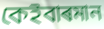
কেইবাৰমান